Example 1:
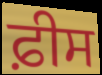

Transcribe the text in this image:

ਫ਼ੀਸ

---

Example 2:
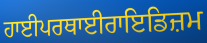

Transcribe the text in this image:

ਹਾਈਪਰਥਾਈਰਾਇਡਿਜ਼ਮ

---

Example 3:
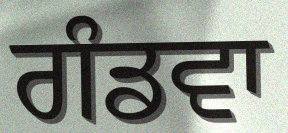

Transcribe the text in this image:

ਗੰਡਵਾ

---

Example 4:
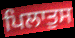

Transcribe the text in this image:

ਪਿਲਾਤੁਸ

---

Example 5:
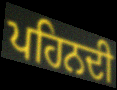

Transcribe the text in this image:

ਪਹਿਨਦੀ